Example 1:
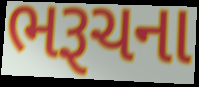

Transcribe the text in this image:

ભરૂચના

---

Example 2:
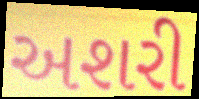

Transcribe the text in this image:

અશરી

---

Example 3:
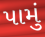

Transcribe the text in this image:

પામું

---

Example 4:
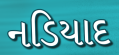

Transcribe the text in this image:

નડિયાદ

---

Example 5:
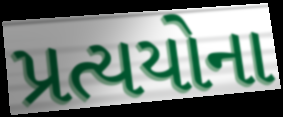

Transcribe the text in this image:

પ્રત્યયોના